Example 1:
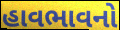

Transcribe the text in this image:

હાવભાવનો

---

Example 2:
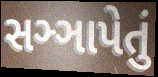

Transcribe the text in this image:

સઞ્ઞાપેતું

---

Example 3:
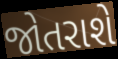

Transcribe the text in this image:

જોતરાશે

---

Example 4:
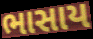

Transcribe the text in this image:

ભાસાય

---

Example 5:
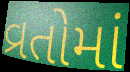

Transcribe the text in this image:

વ્રતોમાં